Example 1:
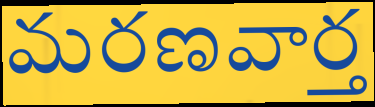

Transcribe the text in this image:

మరణవార్త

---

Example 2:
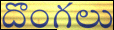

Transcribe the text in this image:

దొంగలు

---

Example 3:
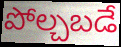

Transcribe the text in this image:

పోల్చబడే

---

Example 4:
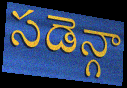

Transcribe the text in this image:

సడెన్గా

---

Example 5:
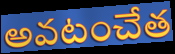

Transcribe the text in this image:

అవటంచేత